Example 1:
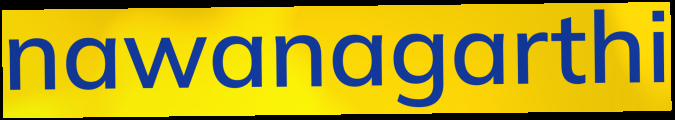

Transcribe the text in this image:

nawanagarthi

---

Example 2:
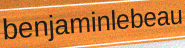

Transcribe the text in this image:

benjaminlebeau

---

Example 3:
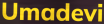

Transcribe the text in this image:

Umadevi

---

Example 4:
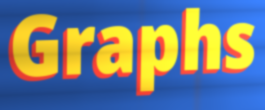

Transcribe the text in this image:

Graphs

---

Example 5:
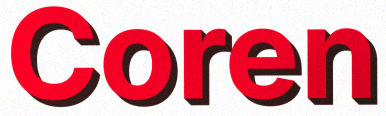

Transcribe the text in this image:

Coren